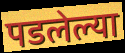
पडलेल्या